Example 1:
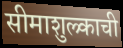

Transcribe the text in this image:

सीमाशुल्काची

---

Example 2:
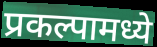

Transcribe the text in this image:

प्रकल्पामध्ये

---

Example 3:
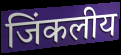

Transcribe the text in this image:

जिंकलीय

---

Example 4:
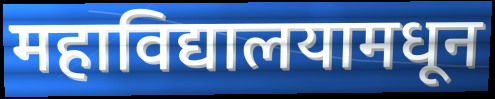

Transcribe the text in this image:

महाविद्यालयामधून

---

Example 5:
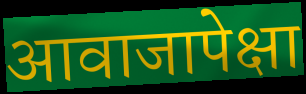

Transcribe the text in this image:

आवाजापेक्षा